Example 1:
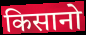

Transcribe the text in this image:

किसानो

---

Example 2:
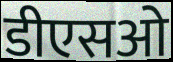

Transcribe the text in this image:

डीएसओ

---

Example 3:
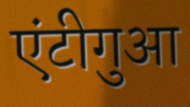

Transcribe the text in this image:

एंटीगुआ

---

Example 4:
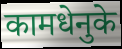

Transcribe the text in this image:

कामधेनुके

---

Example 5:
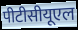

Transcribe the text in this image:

पीटीसीयूएल